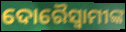
ଦୋରୈସ୍ବାମୀଙ୍କ